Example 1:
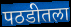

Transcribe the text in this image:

पठडीतला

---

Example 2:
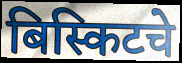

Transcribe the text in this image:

बिस्किटचे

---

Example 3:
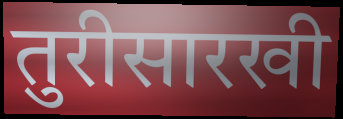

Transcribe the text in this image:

तुरीसारखी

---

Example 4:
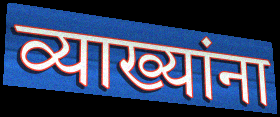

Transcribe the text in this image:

व्याख्यांना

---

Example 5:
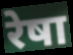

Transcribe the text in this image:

रेषा